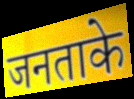
जनताके